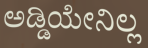
ಅಡ್ಡಿಯೇನಿಲ್ಲ